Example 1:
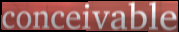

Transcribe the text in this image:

conceivable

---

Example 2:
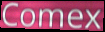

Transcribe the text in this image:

Comex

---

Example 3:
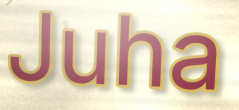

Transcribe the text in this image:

Juha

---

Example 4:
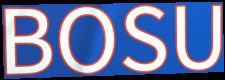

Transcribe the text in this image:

BOSU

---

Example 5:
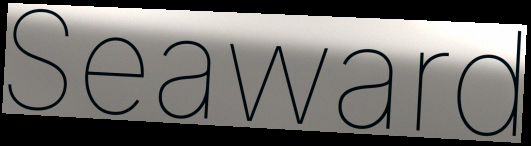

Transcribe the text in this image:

Seaward